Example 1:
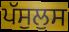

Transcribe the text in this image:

ਪੱਸੁਲੁਸ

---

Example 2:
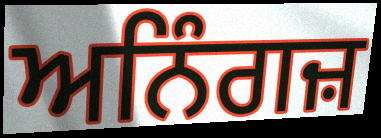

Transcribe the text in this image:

ਅਨਿੰਗਜ਼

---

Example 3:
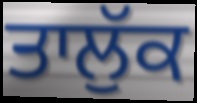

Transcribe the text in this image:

ਤਾਲੁੱਕ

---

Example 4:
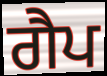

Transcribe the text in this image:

ਗੈਪ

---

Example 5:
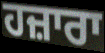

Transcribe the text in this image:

ਹਜ਼ਾਰਾ